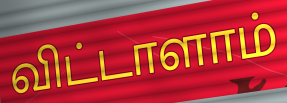
விட்டாளாம்